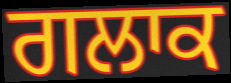
ਗਲਾਕ